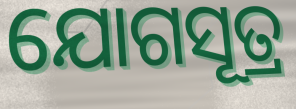
ଯୋଗସୂତ୍ର